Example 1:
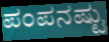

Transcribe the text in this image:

ಪಂಪನಷ್ಟು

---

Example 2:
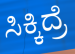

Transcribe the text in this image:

ಸಿಕ್ಕಿದ್ರೆ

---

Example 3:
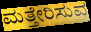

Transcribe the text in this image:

ಮತ್ತೇರಿಸುವ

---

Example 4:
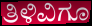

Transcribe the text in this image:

ತಿಳಿವಿಗೂ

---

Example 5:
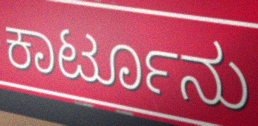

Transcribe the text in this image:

ಕಾರ್ಟೂನು